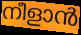
നീളാൻ